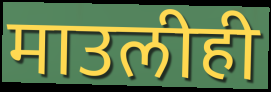
माउलीही